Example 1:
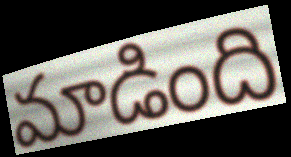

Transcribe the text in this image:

మాడింది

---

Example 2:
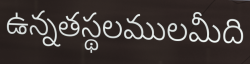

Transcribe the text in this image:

ఉన్నతస్థలములమీది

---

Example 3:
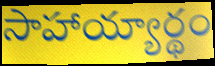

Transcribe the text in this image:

సాహాయ్యార్థం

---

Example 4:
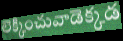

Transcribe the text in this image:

లెక్కించువాడెక్కడ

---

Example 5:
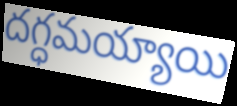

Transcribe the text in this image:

దగ్ధమయ్యాయి